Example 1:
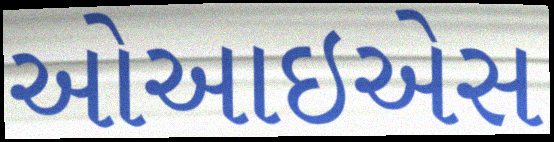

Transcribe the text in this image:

ઓઆઇએસ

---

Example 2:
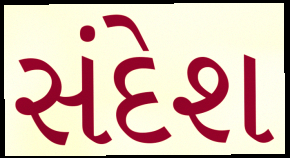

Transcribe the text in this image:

સંદેશ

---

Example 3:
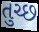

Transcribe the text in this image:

તુચ્છ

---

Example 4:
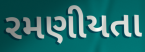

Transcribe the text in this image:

રમણીયતા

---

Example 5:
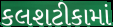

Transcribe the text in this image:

કલશટીકામાં